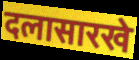
दलासारखे